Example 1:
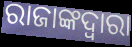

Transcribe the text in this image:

ରାଜାଙ୍କଦ୍ଵାରା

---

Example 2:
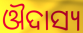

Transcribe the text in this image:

ଔଦାସ୍ୟ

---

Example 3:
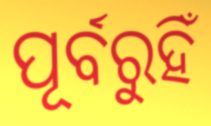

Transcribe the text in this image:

ପୂର୍ବରୁହିଁ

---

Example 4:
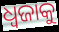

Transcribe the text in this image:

ଧ୍ୱଜାକୁ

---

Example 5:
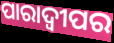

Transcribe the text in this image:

ପାରାଦ୍ବୀପର